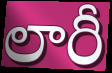
లారీ